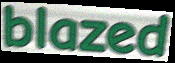
blazed